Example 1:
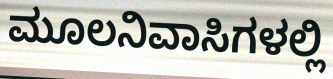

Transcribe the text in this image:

ಮೂಲನಿವಾಸಿಗಳಲ್ಲಿ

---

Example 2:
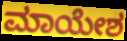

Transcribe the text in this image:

ಮಾಯೇಶ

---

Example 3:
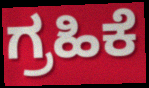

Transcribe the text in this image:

ಗ್ರಹಿಕೆ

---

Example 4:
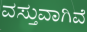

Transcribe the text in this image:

ವಸ್ತುವಾಗಿವೆ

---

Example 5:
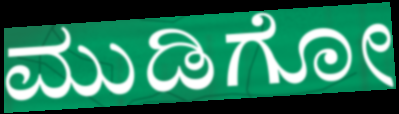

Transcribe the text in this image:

ಮುಡಿಗೋ